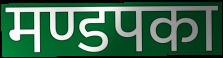
मण्डपका